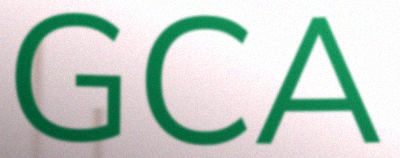
GCA